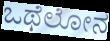
ಒಥೆಲೋನ